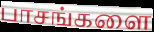
பாசங்களை